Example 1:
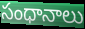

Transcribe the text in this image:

సంధానాలు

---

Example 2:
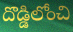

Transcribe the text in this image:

దొడ్డిలోంచి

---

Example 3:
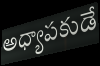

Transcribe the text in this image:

అధ్యాపకుడే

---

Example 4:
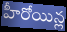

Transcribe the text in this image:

హీరోయిన్ల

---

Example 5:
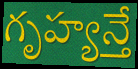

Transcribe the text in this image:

గృహ్యన్తే